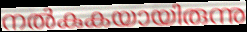
നൽകുകയായിരുന്നു